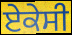
ਏਕੇਸੀ